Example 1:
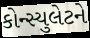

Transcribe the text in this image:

કોન્સ્યુલેટને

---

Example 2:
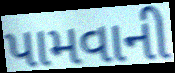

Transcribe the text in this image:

પામવાની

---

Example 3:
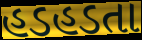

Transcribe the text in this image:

હડહડતા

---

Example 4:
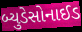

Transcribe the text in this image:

બ્યુડેસોનાઈડ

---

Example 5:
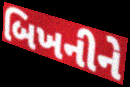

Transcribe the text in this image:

બિખનીને